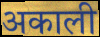
अकाली